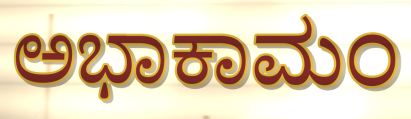
ಅಭಾಕಾಮಂ